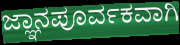
ಜ್ಞಾನಪೂರ್ವಕವಾಗಿ